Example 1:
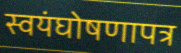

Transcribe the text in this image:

स्वयंघोषणापत्र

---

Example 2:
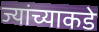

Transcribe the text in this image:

ज्यांच्याकडे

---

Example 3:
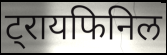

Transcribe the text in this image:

ट्रायफिनिल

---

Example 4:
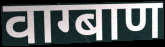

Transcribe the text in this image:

वाग्बाण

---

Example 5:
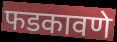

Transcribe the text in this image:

फडकावणे